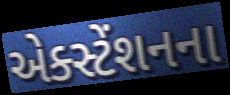
એક્સ્ટેંશનના